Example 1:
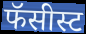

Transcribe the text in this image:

फॅसीस्ट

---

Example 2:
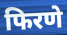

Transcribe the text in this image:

फिरणे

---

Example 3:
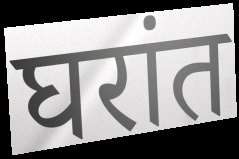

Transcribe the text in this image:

घरांत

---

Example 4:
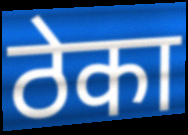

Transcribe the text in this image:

ठेका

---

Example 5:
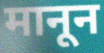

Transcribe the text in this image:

मानून